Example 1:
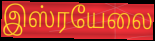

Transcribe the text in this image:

இஸ்ரயேலை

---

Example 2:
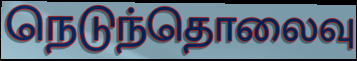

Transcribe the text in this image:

நெடுந்தொலைவு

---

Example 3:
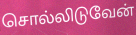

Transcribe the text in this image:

சொல்லிடுவேன்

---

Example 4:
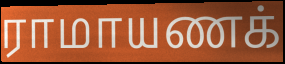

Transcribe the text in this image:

ராமாயணக்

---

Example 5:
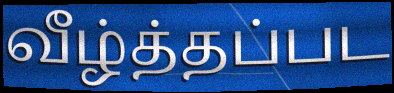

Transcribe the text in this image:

வீழ்த்தப்பட